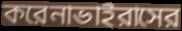
করেনাভাইরাসের